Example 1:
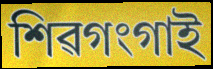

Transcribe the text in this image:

শিৱগংগাই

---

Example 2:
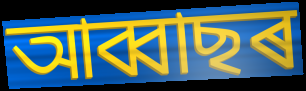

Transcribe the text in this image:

আব্বাছৰ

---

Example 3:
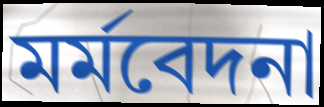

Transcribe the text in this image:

মৰ্মবেদনা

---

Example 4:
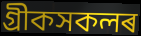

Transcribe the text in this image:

গ্ৰীকসকলৰ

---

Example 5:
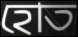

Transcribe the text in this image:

হোত